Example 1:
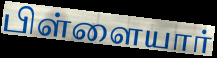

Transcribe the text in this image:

பிள்ளையார்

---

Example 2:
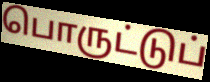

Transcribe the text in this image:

பொருட்டுப்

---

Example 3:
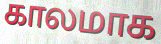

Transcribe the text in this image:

காலமாக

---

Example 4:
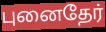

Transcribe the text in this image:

புனைதேர்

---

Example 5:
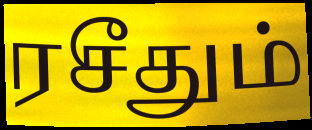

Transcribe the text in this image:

ரசீதும்